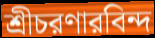
শ্রীচরণারবিন্দ